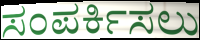
ಸಂಪರ್ಕಿಸಲು